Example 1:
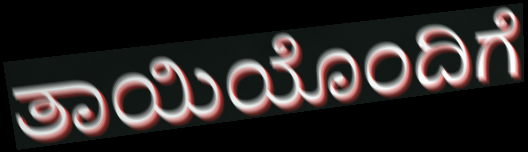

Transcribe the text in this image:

ತಾಯಿಯೊಂದಿಗೆ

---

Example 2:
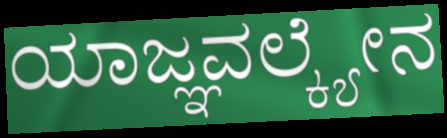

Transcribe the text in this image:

ಯಾಜ್ಞವಲ್ಕ್ಯೇನ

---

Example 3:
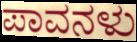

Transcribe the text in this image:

ಪಾವನಳು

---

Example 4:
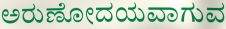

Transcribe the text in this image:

ಅರುಣೋದಯವಾಗುವ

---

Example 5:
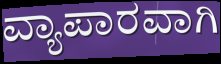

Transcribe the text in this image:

ವ್ಯಾಪಾರವಾಗಿ